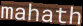
mahath